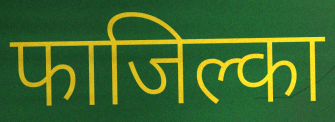
फाजिल्का